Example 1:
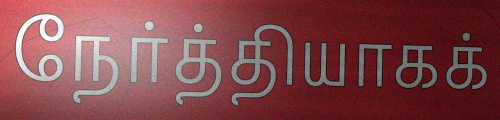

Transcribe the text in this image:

நேர்த்தியாகக்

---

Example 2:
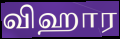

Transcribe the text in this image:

விஹார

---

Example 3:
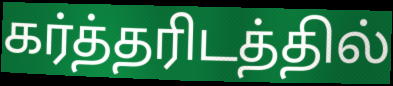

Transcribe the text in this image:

கர்த்தரிடத்தில்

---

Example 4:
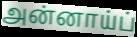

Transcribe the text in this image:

அன்னாய்ப்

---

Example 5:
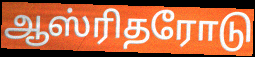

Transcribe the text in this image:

ஆஸ்ரிதரோடு